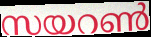
സയറൺ